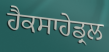
ਹੈਕਸਾਹੇਡ੍ਰਲ